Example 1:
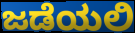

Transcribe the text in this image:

ಜಡೆಯಲಿ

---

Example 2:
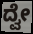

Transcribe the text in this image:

ದ್ವೇ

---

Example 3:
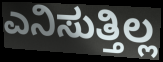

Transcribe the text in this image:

ಎನಿಸುತ್ತಿಲ್ಲ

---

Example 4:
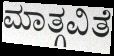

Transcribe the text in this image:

ಮಾತ್ಗವಿತೆ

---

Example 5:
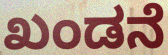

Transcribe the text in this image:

ಖಂಡನೆ